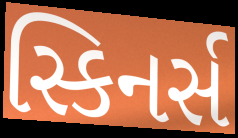
સ્કિનર્સ